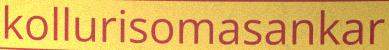
kollurisomasankar